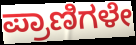
ಪ್ರಾಣಿಗಳೇ